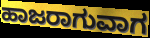
ಹಾಜರಾಗುವಾಗ